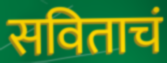
सविताचं